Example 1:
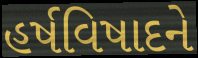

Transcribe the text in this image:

હર્ષવિષાદને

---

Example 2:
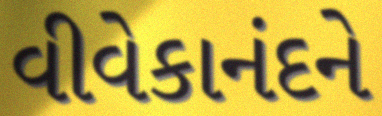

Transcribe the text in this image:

વીવેકાનંદને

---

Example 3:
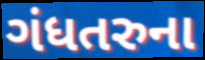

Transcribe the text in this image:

ગંધતરુના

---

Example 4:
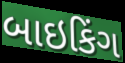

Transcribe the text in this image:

બાઇકિંગ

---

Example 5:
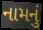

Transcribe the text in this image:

નામનું